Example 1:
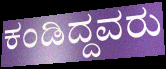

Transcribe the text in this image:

ಕಂಡಿದ್ದವರು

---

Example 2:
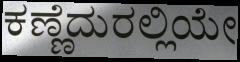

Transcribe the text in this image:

ಕಣ್ಣೆದುರಲ್ಲಿಯೇ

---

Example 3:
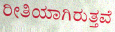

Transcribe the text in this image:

ರೀತಿಯಾಗಿರುತ್ತವೆ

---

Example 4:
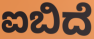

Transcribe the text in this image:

ಐಬಿದೆ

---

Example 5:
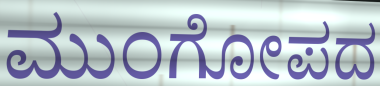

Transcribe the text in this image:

ಮುಂಗೋಪದ